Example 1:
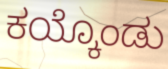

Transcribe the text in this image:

ಕಯ್ಕೊಂಡು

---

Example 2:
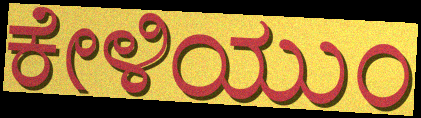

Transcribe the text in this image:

ಕೇಳಿಯುಂ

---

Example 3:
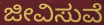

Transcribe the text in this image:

ಜೀವಿಸುವೆ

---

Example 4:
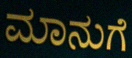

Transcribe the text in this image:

ಮಾನುಗೆ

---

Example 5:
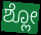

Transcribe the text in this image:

ಶ್ಲೋ